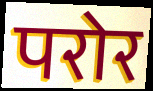
परोर